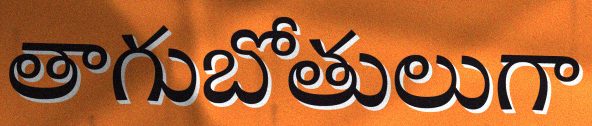
తాగుబోతులుగా